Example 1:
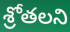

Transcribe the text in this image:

శ్రోతలని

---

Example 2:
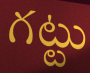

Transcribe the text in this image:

గట్టు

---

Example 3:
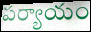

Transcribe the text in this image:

పర్యాయం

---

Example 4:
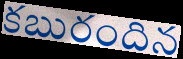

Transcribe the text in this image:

కబురందిన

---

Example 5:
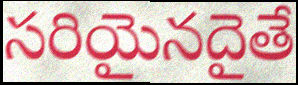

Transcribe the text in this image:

సరియైనదైతే